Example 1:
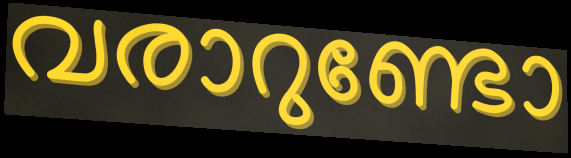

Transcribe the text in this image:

വരാറുണ്ടോ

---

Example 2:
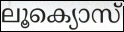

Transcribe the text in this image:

ലൂക്യൊസ്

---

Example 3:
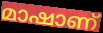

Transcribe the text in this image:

മാഷാണ്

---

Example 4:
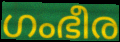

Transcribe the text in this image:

ഗംഭീര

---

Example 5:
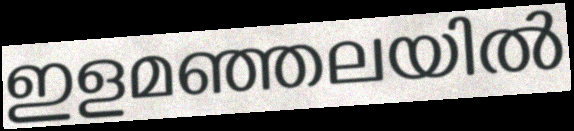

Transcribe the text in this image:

ഇളമഞ്ഞലയിൽ